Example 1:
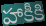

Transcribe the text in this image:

హాకీకి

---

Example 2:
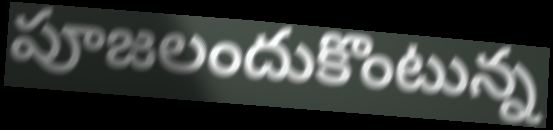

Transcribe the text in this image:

పూజలందుకొంటున్న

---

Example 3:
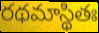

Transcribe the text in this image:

రథమాస్థితః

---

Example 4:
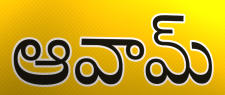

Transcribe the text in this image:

ఆవామ్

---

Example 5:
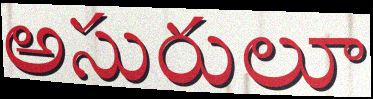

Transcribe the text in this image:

అసురులూ